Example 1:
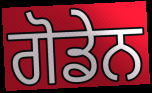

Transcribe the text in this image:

ਗੋਡੇਨ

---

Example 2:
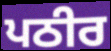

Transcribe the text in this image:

ਪਠੀਰ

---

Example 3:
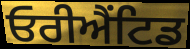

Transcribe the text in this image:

ਓਰੀਐਂਟਿਡ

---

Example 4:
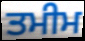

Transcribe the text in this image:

ਤਮੀਮ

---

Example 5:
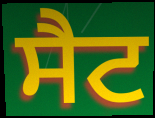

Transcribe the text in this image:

ਸੈਟ